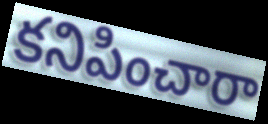
కనిపించారా